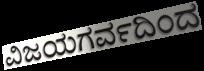
ವಿಜಯಗರ್ವದಿಂದ